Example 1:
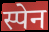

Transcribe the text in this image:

स्पेन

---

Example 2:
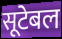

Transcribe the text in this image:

सूटेबल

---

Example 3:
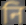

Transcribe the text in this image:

नि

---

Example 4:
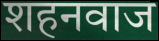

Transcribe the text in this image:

शहनवाज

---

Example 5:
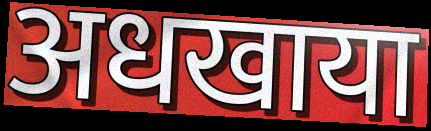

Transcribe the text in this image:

अधखाया